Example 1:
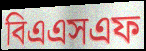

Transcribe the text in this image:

বিএএসএফ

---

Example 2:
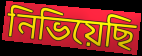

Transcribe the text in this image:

নিভিয়েছি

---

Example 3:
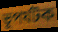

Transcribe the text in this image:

ভূপর্যটক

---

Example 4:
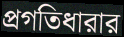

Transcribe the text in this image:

প্রগতিধারার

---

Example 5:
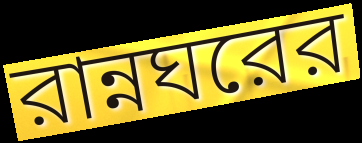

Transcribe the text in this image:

রান্নঘরের